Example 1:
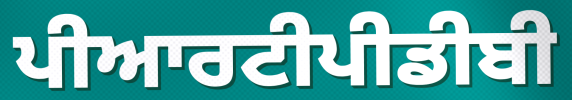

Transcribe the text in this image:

ਪੀਆਰਟੀਪੀਡੀਬੀ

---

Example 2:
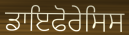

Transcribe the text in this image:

ਡਾਇਫੋਰੇਸਿਸ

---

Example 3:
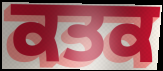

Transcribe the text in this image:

ਕਤਕ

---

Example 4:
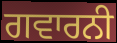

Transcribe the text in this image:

ਗਵਾਰਨੀ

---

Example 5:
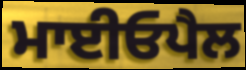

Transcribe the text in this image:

ਮਾਈਓਪੈਲ